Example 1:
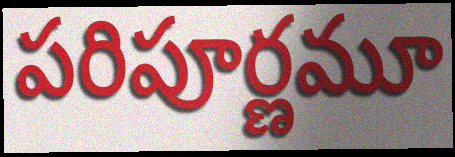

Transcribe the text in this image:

పరిపూర్ణమూ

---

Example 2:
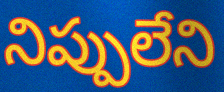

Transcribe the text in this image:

నిప్పులేని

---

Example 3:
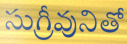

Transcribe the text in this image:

సుగ్రీవునితో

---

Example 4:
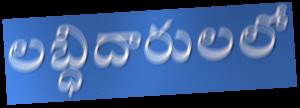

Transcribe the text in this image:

లబ్ధిదారులలో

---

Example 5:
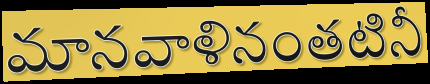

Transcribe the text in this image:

మానవాళినంతటినీ